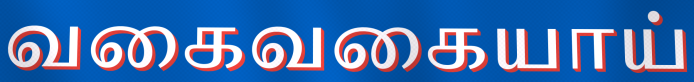
வகைவகையாய்